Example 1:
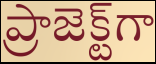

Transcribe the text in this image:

ప్రాజెక్ట్‌గా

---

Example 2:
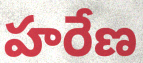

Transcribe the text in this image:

హరేణ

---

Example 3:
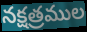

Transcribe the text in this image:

నక్షత్రముల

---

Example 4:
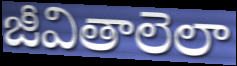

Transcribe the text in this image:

జీవితాలెలా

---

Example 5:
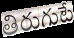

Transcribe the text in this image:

తిరుగుటే